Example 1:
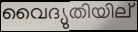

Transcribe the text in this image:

വൈദ്യുതിയില്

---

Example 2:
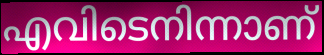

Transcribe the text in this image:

എവിടെനിന്നാണ്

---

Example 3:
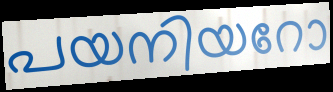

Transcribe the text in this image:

പയനിയറോ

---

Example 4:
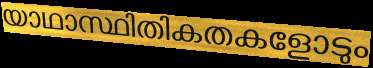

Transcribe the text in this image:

യാഥാസ്ഥിതികതകളോടും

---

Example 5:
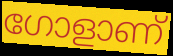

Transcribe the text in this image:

ഗോളാണ്